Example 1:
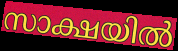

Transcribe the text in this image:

സാക്ഷയിൽ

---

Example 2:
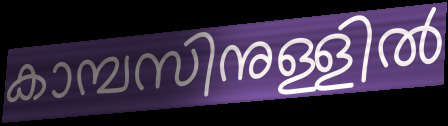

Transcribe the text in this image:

കാമ്പസിനുള്ളിൽ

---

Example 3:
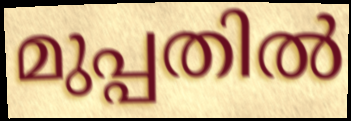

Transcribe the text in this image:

മുപ്പതിൽ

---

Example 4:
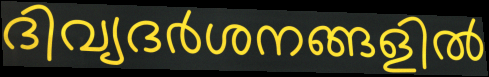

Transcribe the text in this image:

ദിവ്യദർശനങ്ങളിൽ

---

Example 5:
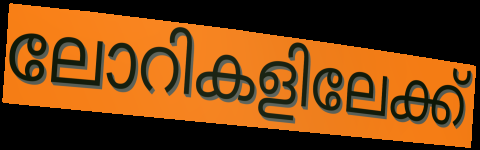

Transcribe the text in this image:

ലോറികളിലേക്ക്